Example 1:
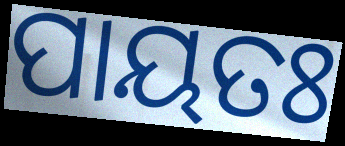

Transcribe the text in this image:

ପାୟତଃ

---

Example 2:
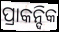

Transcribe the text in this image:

ପ୍ରାକନ୍ଦିକ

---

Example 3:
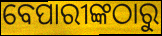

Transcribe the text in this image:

ବେପାରୀଙ୍କଠାରୁ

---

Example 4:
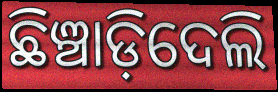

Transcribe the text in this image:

ଛିଞ୍ଚାଡ଼ିଦେଲି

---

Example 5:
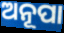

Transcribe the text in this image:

ଅନୂପା